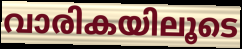
വാരികയിലൂടെ